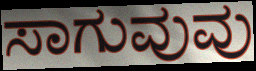
ಸಾಗುವುವು